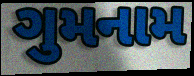
ગુમનામ